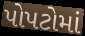
પોપટોમાં